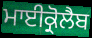
ਮਾਈਕ੍ਰੋਲੈਬ